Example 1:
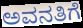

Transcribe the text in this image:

ಅವನತಿಗೆ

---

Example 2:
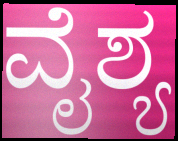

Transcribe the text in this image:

ವೈಶ್ಯ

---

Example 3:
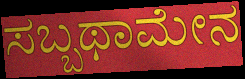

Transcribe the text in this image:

ಸಬ್ಬಥಾಮೇನ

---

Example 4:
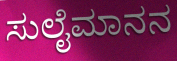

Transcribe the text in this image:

ಸುಲೈಮಾನನ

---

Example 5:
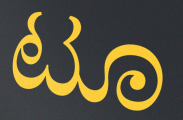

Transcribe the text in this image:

ಟೂ